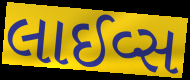
લાઈવ્સ